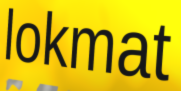
lokmat